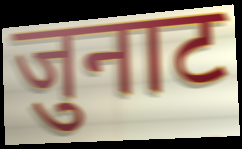
जुनाट